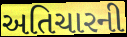
અતિચારની